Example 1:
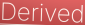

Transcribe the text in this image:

Derived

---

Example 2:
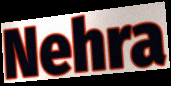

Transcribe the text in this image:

Nehra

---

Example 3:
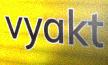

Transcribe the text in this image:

vyakt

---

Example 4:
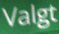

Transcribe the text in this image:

Valgt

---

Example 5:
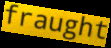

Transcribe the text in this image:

fraught